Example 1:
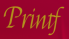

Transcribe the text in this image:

Printf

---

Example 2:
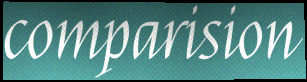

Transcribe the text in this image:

comparision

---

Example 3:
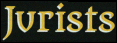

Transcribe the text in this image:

Jurists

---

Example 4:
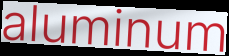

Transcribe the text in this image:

aluminum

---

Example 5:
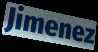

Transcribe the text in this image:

Jimenez